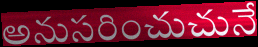
అనుసరించుచునే